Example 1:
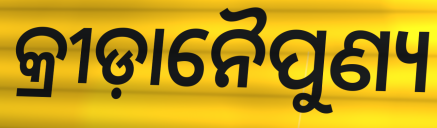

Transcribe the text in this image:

କ୍ରୀଡ଼ାନୈପୁଣ୍ୟ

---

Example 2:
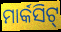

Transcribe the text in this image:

ମାର୍କସିଟ୍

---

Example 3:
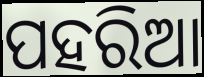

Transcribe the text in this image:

ପହରିଆ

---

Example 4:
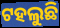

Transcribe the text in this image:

ଟହଲୁଛି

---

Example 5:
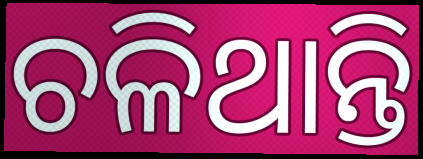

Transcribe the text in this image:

ଚଳିଥାନ୍ତି